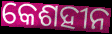
କେଶହୀନ